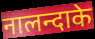
नालन्दाके